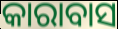
କାରାବାସ